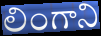
లింగాని